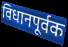
विधानपूर्वक